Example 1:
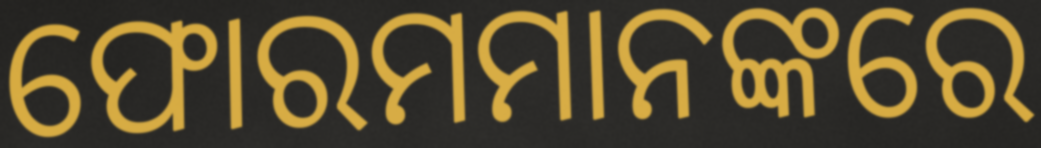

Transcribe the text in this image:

ଫୋରମମାନଙ୍କରେ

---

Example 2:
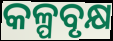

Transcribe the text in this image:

କଳ୍ପବୃକ୍ଷ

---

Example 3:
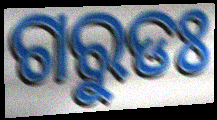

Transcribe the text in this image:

ଗରୁଡଃ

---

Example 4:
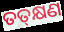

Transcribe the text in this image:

ତତ୍‌କ୍ଷଣ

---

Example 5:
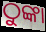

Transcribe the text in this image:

ଠୁଙ୍କା